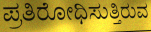
ಪ್ರತಿರೋಧಿಸುತ್ತಿರುವ